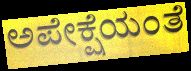
ಅಪೇಕ್ಷೆಯಂತೆ